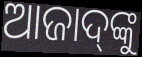
ଆଜାଦ୍‌ଙ୍କୁ